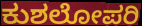
ಕುಶಲೋಪರಿ